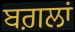
ਬਗ਼ਲਾਂ